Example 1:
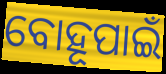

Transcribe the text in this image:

ବୋହୂପାଇଁ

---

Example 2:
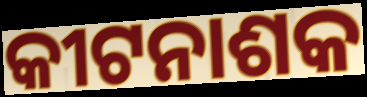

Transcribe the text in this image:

କୀଟନାଶକ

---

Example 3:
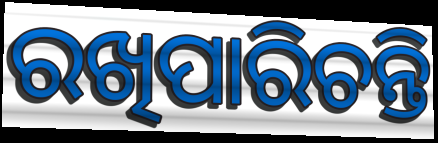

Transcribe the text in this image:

ରଖିପାରିଚନ୍ତି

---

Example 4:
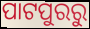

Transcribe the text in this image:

ପାଟପୁରରୁ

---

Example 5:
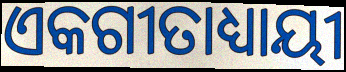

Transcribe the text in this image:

ଏକଗୀତାଧ୍ୟାୟୀ